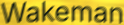
Wakeman